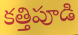
కత్తిపూడి